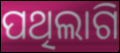
ପଥିଲାଗି